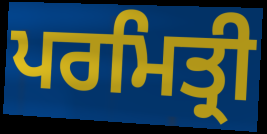
ਪਰਮਿਤ੍ਰੀ